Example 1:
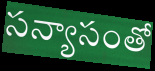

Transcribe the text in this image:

సన్యాసంతో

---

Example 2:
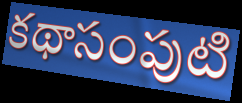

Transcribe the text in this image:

కథాసంపుటి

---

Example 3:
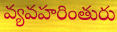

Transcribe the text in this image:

వ్యవహరింతురు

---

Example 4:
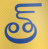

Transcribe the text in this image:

త్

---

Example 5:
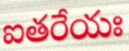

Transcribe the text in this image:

ఐతరేయః